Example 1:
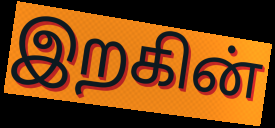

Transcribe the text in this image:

இறகின்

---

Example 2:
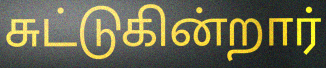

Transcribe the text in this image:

சுட்டுகின்றார்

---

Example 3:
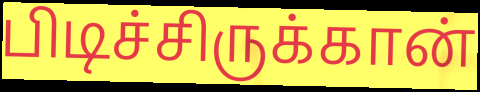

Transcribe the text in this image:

பிடிச்சிருக்கான்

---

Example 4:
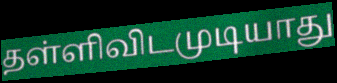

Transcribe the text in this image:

தள்ளிவிடமுடியாது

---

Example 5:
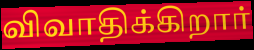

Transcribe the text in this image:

விவாதிக்கிறார்